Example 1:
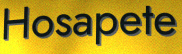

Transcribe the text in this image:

Hosapete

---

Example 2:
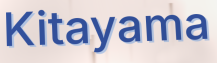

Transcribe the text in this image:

Kitayama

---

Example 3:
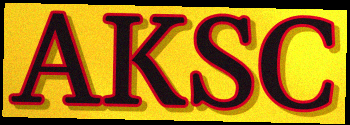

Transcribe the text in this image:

AKSC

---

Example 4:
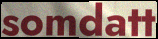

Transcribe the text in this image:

somdatt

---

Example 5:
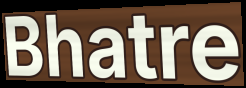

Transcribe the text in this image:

Bhatre